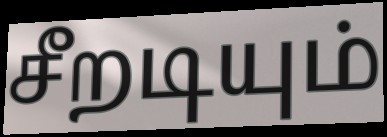
சீறடியும்